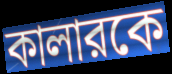
কালারকে